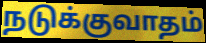
நடுக்குவாதம்